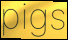
pigs